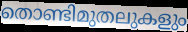
തൊണ്ടിമുതലുകളും